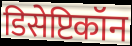
डिसेप्टिकॉन